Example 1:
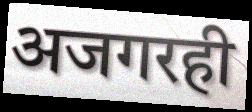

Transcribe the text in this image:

अजगरही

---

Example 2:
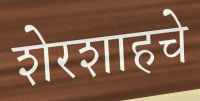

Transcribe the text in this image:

शेरशाहचे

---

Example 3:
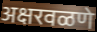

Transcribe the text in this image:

अक्षरवळणे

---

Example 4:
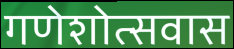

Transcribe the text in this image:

गणेशोत्सवास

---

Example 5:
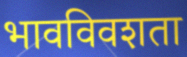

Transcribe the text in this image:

भावविवशता